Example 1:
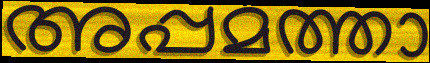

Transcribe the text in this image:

അപ്പമത്താ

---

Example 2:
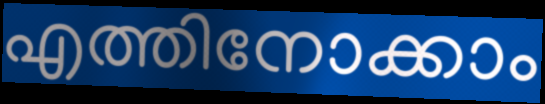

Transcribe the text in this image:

എത്തിനോക്കാം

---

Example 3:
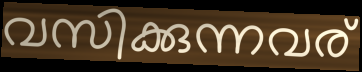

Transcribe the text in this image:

വസിക്കുന്നവര്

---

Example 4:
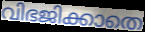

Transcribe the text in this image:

വിഭജിക്കാതെ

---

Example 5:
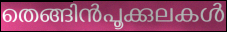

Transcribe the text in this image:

തെങ്ങിൻപൂക്കുലകൾ